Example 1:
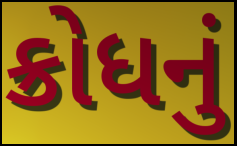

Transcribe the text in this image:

ક્રોધનું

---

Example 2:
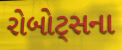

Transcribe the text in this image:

રોબોટ્સના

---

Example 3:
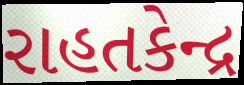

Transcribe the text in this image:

રાહતકેન્દ્ર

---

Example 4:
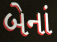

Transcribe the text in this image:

બેનાં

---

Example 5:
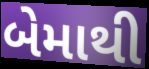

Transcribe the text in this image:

બેમાથી